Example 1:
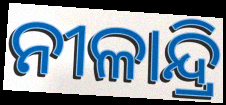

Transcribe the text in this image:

ନୀଳାନ୍ଦ୍ରି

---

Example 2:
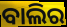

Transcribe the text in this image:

ବାଲିର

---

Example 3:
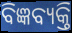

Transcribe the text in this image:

ବିଜ୍ଞବ୍ୟକ୍ତି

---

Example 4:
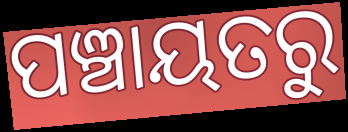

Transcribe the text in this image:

ପଞ୍ଚାୟତରୁ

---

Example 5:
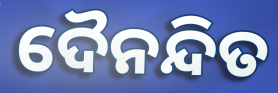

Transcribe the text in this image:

ଦୈନନ୍ଦିତ